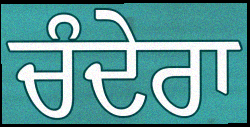
ਚੰਦੇਰਾ